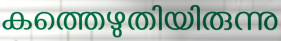
കത്തെഴുതിയിരുന്നു